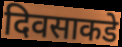
दिवसाकडे